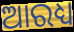
ଆରଧ୍ୟ